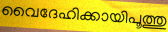
വൈദേഹിക്കായിപൂത്തു